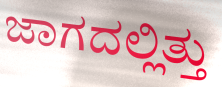
ಜಾಗದಲ್ಲಿತ್ತು